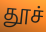
தூச்